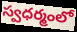
స్వధర్మంలో